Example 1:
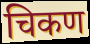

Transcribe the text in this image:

चिकण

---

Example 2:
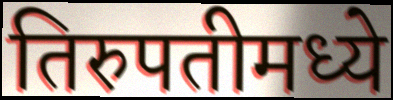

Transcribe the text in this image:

तिरुपतीमध्ये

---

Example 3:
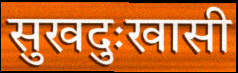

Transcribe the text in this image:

सुखदुःखासी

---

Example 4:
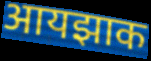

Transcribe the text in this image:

आयझाक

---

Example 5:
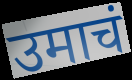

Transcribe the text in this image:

उमाचं